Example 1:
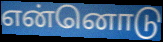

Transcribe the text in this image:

என்னொடு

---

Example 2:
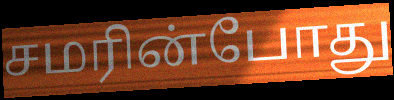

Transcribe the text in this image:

சமரின்போது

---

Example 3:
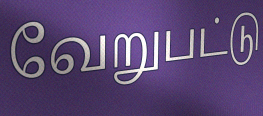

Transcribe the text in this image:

வேறுபட்டு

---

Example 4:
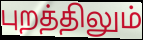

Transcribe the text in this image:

புறத்திலும்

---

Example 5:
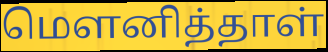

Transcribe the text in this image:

மௌனித்தாள்